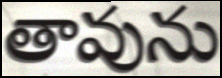
తావును